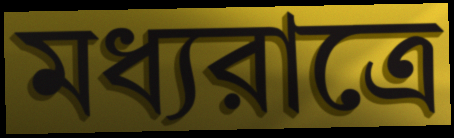
মধ্যরাত্রে